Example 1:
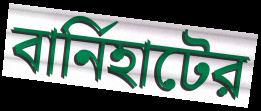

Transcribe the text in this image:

বার্নিহাটের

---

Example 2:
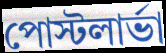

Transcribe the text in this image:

পোস্টলার্ভা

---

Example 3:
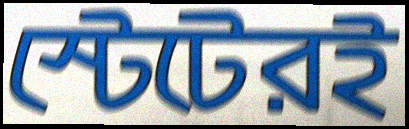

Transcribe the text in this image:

স্টেটেরই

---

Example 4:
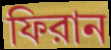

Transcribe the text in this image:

ফিরান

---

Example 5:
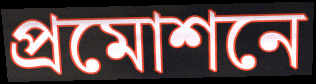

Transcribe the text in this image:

প্রমোশনে